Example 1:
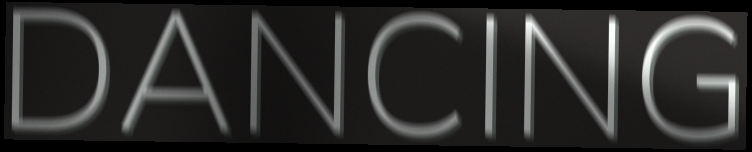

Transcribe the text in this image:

DANCING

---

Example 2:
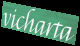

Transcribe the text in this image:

vicharta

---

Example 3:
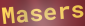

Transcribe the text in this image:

Masers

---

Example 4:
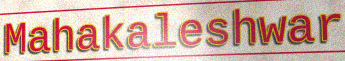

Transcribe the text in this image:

Mahakaleshwar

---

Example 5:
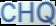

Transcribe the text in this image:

CHQ